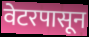
वेटरपासून